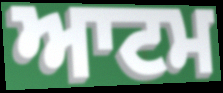
ਆਟਮ